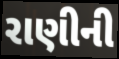
રાણીની